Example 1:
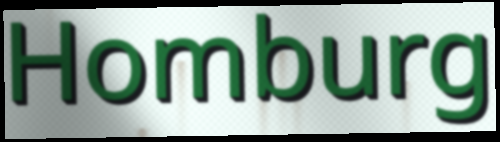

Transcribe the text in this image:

Homburg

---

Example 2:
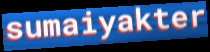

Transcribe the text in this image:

sumaiyakter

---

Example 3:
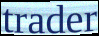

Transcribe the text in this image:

trader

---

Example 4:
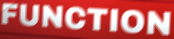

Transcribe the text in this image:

FUNCTION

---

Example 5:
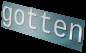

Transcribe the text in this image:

gotten